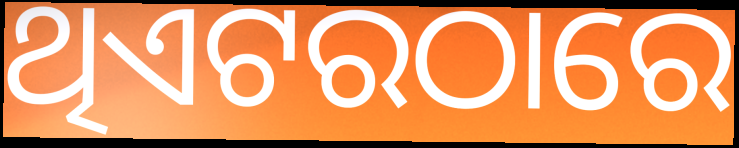
ଥିଏଟରଠାରେ